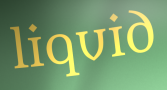
liquid